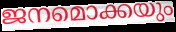
ജനമൊക്കയും